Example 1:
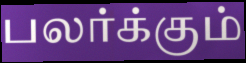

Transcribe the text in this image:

பலர்க்கும்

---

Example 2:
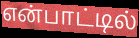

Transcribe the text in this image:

என்பாட்டில்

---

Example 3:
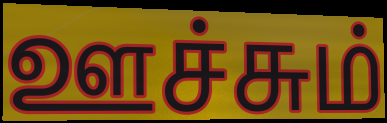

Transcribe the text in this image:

ஊச்சும்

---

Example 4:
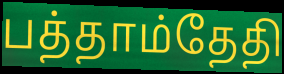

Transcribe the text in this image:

பத்தாம்தேதி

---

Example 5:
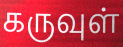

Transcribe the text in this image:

கருவுள்